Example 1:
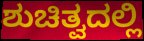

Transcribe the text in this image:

ಶುಚಿತ್ವದಲ್ಲಿ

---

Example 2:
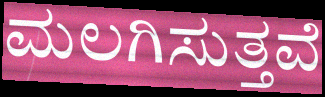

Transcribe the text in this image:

ಮಲಗಿಸುತ್ತವೆ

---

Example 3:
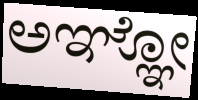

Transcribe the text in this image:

ಅಞ್ಞೋ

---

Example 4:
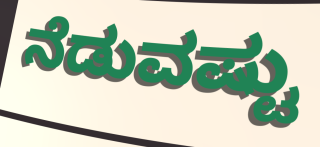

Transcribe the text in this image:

ನೆಡುವಷ್ಟು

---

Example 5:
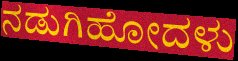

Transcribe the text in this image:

ನಡುಗಿಹೋದಳು